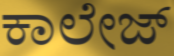
ಕಾಲೇಜ್